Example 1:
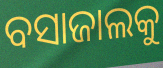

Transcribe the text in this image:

ବସାଜାଲକୁ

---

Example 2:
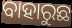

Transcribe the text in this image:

ବାହାରୁଛ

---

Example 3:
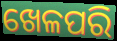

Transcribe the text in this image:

ଖେଳପରି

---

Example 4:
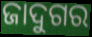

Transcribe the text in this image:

ଜାଦୁଗର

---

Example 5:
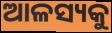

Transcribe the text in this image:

ଆଳସ୍ୟକୁ